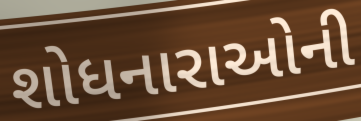
શોધનારાઓની